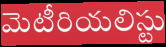
మెటీరియలిస్టు